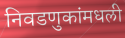
निवडणुकांमधली